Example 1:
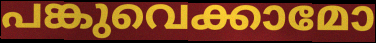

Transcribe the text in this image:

പങ്കുവെക്കാമോ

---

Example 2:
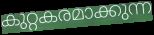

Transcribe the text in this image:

കുറ്റകരമാക്കുന്ന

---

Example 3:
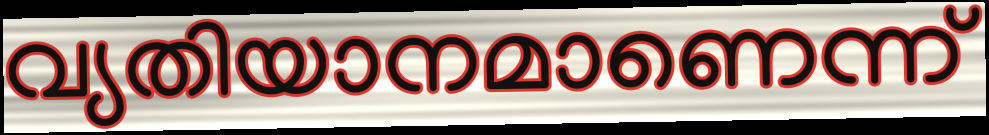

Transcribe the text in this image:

വ്യതിയാനമാണെന്ന്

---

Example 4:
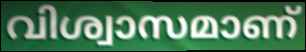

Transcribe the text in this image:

വിശ്വാസമാണ്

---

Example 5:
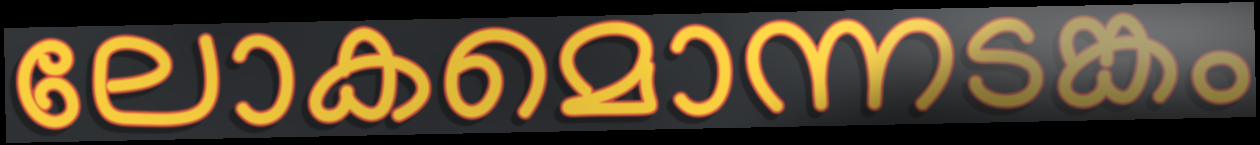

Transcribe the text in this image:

ലോകമൊന്നടങ്കം